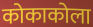
कोकाकोला